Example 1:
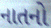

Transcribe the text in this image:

નાતનો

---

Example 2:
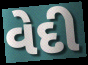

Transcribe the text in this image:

વેદી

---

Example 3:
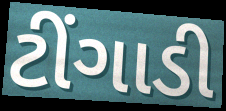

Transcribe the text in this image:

ટીંગાડી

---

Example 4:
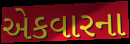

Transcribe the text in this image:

એકવારના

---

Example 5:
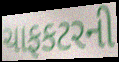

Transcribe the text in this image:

ચાફકટરની